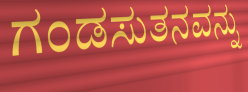
ಗಂಡಸುತನವನ್ನು